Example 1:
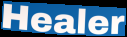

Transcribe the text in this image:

Healer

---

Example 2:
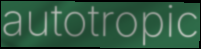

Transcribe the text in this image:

autotropic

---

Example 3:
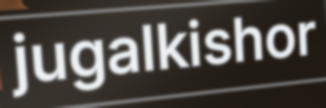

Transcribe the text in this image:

jugalkishor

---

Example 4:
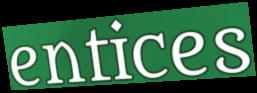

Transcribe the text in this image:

entices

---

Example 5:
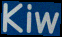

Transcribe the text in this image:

Kiw